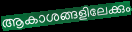
ആകാശങ്ങളിലേക്കും